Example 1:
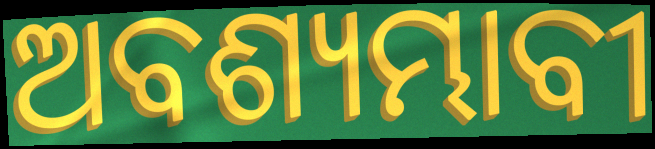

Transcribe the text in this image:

ଅବଶ୍ୟମ୍ଭାବୀ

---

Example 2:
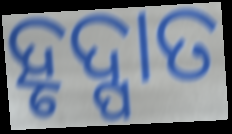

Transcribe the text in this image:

ହୃଦ୍ପାତ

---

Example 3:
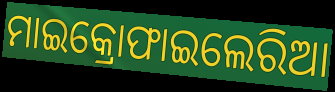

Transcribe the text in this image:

ମାଇକ୍ରୋଫାଇଲେରିଆ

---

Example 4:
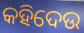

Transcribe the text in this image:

କହିଦେଉ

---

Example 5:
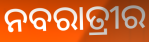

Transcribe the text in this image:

ନବରାତ୍ରୀର